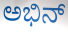
ಅಭಿನ್